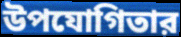
উপযোগিতার